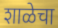
शाळेचा